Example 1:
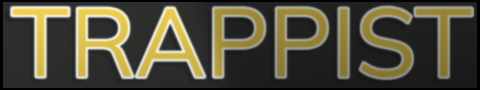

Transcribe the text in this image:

TRAPPIST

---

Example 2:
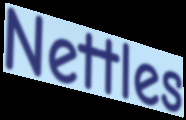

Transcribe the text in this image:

Nettles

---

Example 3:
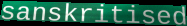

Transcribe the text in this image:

sanskritised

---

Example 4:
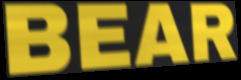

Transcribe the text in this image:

BEAR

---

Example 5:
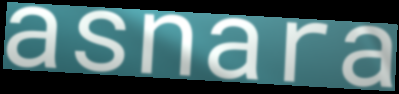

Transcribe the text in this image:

asnara